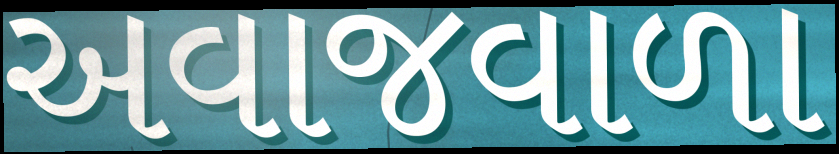
અવાજવાળા